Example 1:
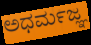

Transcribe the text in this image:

ಅಧರ್ಮಜ್ಞ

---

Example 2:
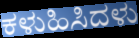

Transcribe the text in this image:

ಕಳುಹಿಸಿದಳು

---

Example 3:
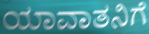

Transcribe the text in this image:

ಯಾವಾತನಿಗೆ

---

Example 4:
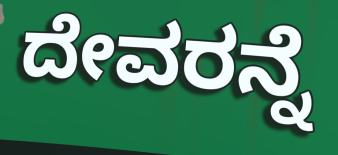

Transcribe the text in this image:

ದೇವರನ್ನೆ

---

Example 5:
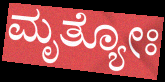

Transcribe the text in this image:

ಮೃತ್ಯೋಃ